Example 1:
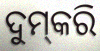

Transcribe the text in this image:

ଦୁମ୍‍କରି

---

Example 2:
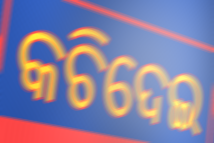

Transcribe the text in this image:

କଚିଦେଇ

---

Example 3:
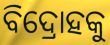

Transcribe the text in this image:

ବିଦ୍ରୋହକୁ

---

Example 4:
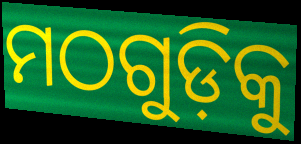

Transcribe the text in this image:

ମଠଗୁଡ଼ିକୁ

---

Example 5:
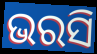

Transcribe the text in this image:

ଭରସି